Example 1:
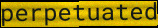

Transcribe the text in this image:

perpetuated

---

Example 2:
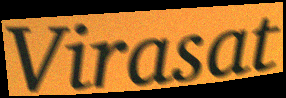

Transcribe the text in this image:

Virasat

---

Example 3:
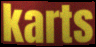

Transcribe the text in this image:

karts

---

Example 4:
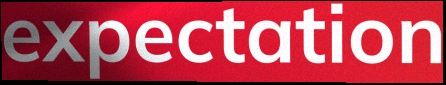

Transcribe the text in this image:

expectation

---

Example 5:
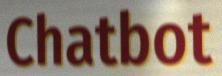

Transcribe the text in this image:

Chatbot